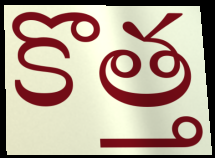
కొత్త